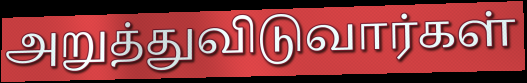
அறுத்துவிடுவார்கள்